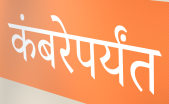
कंबरेपर्यंत